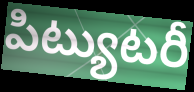
పిట్యుటరీ